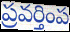
ప్రవర్తింప